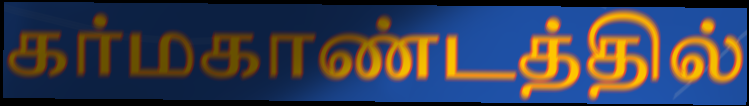
கர்மகாண்டத்தில்